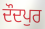
ਦੌਦਪੁਰ